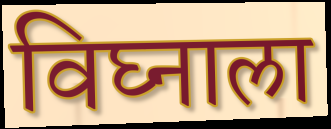
विघ्नाला